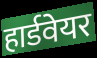
हार्डवेयर